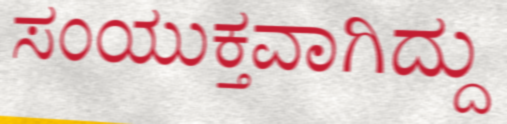
ಸಂಯುಕ್ತವಾಗಿದ್ದು